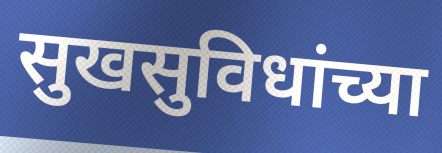
सुखसुविधांच्या